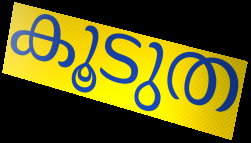
കൂടുത